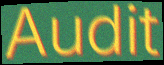
Audit